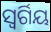
ସ୍ୱର୍ଗିୟ